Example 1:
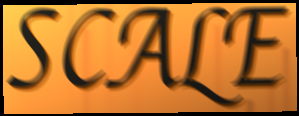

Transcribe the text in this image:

SCALE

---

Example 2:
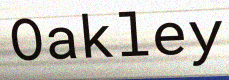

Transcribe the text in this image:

Oakley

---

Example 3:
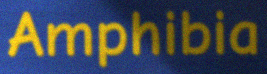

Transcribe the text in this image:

Amphibia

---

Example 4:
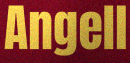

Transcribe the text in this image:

Angell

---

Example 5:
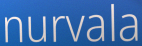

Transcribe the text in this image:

nurvala